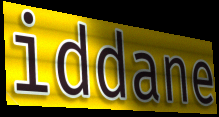
iddane